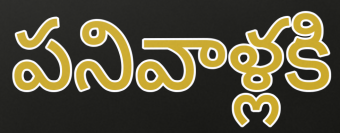
పనివాళ్లకి